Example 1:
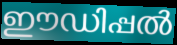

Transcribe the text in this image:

ഈഡിപ്പൽ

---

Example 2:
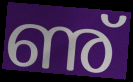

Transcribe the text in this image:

ണു്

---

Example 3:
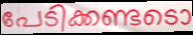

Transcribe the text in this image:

പേടിക്കണ്ടടൊ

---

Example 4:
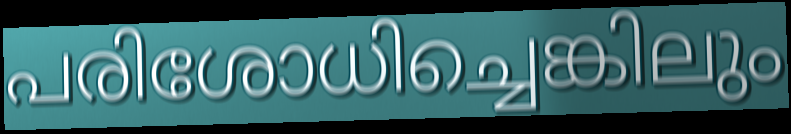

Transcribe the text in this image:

പരിശോധിച്ചെങ്കിലും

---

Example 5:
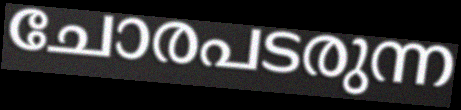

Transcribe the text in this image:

ചോരപടരുന്ന